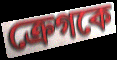
ক্রেগকে